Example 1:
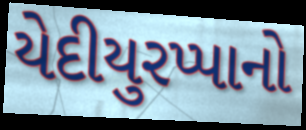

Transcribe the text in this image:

યેદીયુરપ્પાનો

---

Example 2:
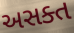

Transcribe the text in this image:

અસક્ત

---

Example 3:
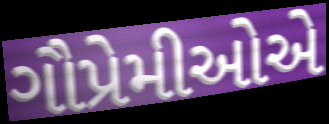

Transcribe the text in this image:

ગૌપ્રેમીઓએ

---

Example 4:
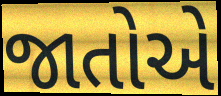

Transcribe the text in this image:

જાતોએ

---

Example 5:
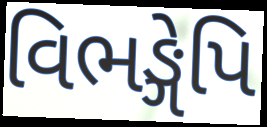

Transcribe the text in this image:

વિભઙ્ગેપિ